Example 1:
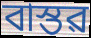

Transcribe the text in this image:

বাস্তৱ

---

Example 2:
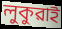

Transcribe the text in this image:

লুকুৱাই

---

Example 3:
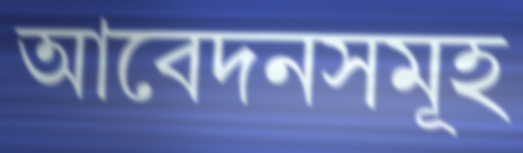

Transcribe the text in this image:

আবেদনসমূহ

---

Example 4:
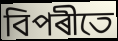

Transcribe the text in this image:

বিপৰীতে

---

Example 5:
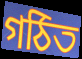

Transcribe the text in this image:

গঠিত